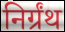
निर्ग्रंथ